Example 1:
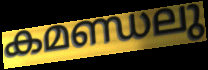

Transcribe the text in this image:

കമണ്ഡലു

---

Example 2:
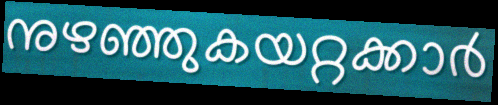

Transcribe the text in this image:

നുഴഞ്ഞുകയറ്റക്കാർ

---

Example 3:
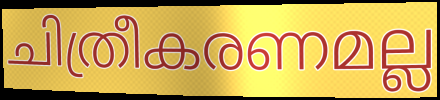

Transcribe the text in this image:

ചിത്രീകരണമല്ല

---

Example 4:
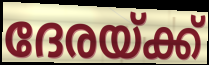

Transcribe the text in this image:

ദേരയ്ക്ക്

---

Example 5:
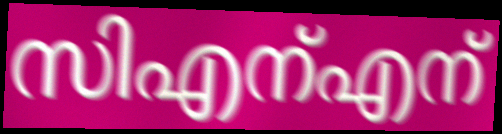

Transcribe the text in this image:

സിഎന്എന്